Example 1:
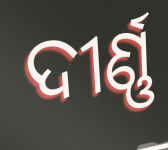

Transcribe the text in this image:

ଦୀର୍ଣ୍ଣ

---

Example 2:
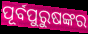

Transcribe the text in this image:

ପୂର୍ବପୁରୁଷଙ୍କର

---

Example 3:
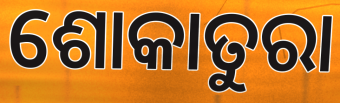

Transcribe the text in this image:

ଶୋକାତୁରା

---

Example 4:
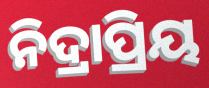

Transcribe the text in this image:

ନିଦ୍ରାପ୍ରିୟ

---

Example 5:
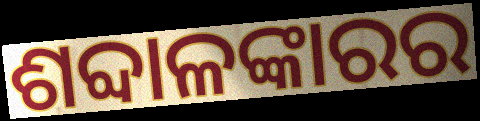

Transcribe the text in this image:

ଶବ୍ଦାଳଙ୍କାରର